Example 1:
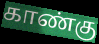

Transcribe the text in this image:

காண்கு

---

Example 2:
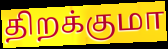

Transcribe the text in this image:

திறக்குமா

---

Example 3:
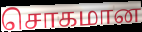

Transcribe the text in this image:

சொகமான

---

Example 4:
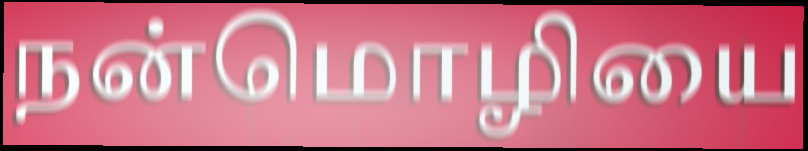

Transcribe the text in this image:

நன்மொழியை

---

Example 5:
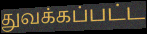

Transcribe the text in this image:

துவக்கப்பட்ட